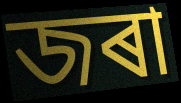
জৰা